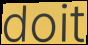
doit